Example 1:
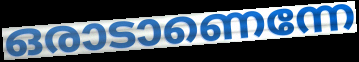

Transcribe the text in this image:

ഒരാടാണെന്നേ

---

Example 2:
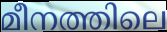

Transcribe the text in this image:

മീനത്തിലെ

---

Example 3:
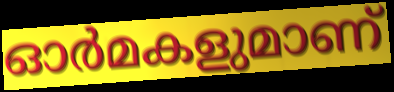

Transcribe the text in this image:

ഓർമകളുമാണ്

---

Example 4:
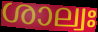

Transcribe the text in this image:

ശാല്വഃ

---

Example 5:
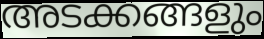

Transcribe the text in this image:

അടക്കങ്ങളും